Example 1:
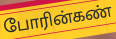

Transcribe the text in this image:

போரின்கண்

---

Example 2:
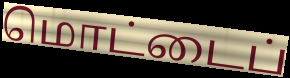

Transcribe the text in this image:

மொட்டைப்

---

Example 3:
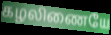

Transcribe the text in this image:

கழலிணையே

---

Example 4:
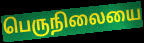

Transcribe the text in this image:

பெருநிலையை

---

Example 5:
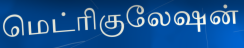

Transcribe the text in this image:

மெட்ரிகுலேஷன்